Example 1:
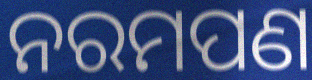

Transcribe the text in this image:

ନରମପଣ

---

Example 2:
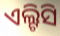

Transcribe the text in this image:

ଏଲ୍ଟିସି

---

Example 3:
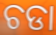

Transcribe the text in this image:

ଚଡା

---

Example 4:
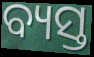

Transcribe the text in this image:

ବ୍ୟସ୍ତ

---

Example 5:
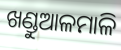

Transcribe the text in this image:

ଖଣ୍ଡୁଆଳମାଳି